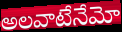
అలవాటేనేమో